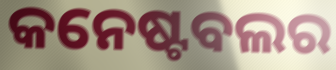
କନେଷ୍ଟବଲର